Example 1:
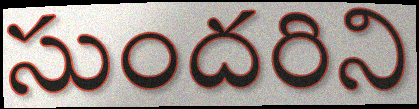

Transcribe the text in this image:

సుందరిని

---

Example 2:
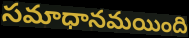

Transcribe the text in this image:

సమాధానమయింది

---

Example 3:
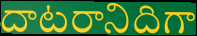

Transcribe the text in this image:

దాటరానిదిగా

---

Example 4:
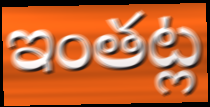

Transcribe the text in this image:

ఇంతట్ల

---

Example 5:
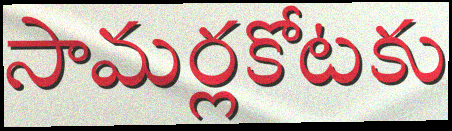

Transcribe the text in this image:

సామర్లకోటకు